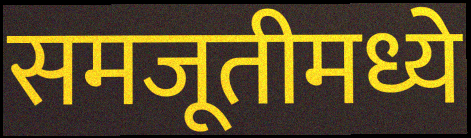
समजूतीमध्ये